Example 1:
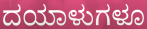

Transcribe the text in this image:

ದಯಾಳುಗಳೂ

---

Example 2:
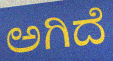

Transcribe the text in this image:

ಅಗಿದೆ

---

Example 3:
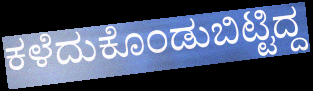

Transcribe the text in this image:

ಕಳೆದುಕೊಂಡುಬಿಟ್ಟಿದ್ದ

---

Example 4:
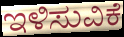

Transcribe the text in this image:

ಇಳಿಸುವಿಕೆ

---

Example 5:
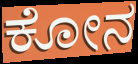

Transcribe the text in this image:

ಕೋನ